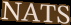
NATS